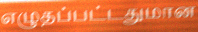
எழுதப்பட்டதுமான